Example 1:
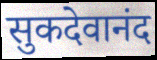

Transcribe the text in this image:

सुकदेवानंद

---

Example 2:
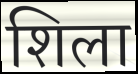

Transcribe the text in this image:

शिला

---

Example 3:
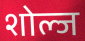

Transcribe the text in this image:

शोल्ज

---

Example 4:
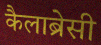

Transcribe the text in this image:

कैलाब्रेसी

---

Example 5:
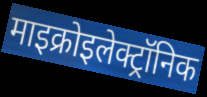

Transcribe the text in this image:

माइक्रोइलेक्ट्रॉनिक